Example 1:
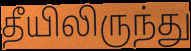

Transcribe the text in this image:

தீயிலிருந்து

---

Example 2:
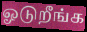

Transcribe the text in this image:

ஓடுறீங்க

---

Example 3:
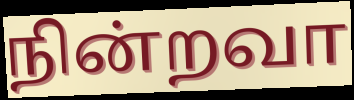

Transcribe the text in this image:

நின்றவா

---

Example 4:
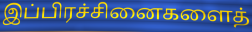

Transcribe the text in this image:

இப்பிரச்சினைகளைத்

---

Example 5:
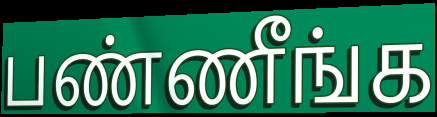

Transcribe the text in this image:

பண்ணீங்க